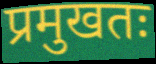
प्रमुखतः